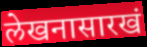
लेखनासारखं